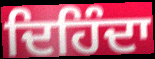
ਦਿਹਿੰਦਾ